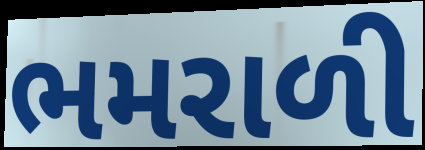
ભમરાળી